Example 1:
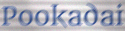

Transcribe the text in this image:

Pookadai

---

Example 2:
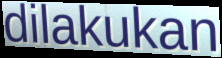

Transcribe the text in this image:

dilakukan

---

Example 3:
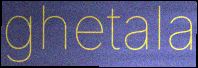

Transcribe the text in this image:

ghetala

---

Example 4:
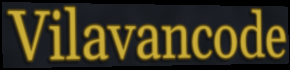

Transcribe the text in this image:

Vilavancode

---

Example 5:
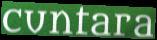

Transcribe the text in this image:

cuntara